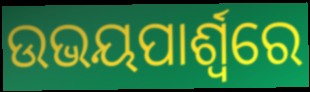
ଉଭୟପାର୍ଶ୍ବରେ